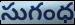
సుగంధ